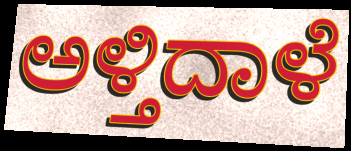
ಅಳ್ತಿದಾಳೆ